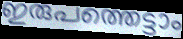
ഇരുപത്തെട്ടാം